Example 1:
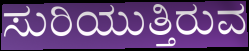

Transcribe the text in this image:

ಸುರಿಯುತ್ತಿರುವ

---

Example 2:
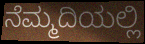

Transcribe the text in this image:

ನೆಮ್ಮದಿಯಲ್ಲಿ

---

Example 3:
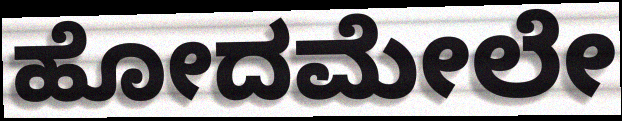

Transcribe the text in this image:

ಹೋದಮೇಲೇ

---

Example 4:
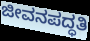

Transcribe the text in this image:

ಜೀವನಪದ್ಧತಿ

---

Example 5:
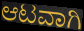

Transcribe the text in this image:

ಆಟವಾಗಿ